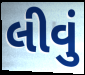
લીવું